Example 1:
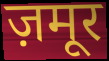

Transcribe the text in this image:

ज़मूर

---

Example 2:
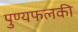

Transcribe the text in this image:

पुण्यफलकी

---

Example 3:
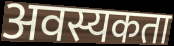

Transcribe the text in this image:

अवस्यकता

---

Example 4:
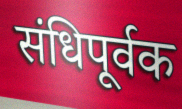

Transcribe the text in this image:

संधिपूर्वक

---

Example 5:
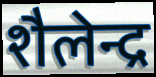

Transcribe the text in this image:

शैलेन्द्र